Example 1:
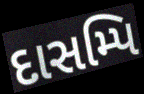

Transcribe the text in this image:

દાસમ્પિ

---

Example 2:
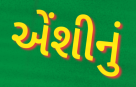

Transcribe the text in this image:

એંશીનું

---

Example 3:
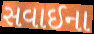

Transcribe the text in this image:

સવાઈના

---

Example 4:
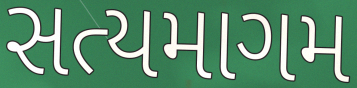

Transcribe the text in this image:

સત્યમાગમ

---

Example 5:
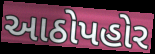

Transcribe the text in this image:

આઠોપહોર